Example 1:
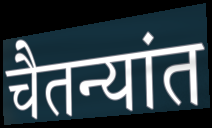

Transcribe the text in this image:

चैतन्यांत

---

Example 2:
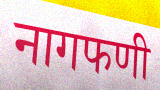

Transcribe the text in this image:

नागफणी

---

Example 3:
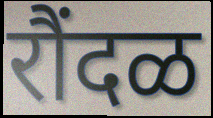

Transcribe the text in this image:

रौंदळ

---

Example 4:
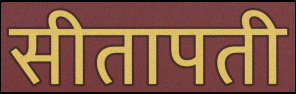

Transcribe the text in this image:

सीतापती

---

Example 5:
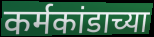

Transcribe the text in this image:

कर्मकांडाच्या